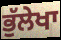
ਭੁੱਲੇਖਾ